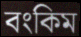
বংকিম